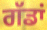
ਗੱਡਾਂ